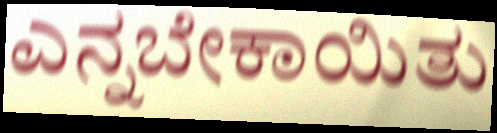
ಎನ್ನಬೇಕಾಯಿತು